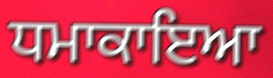
ਧਮਾਕਾਇਆ